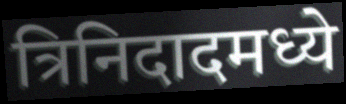
त्रिनिदादमध्ये